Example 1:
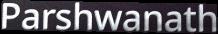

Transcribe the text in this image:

Parshwanath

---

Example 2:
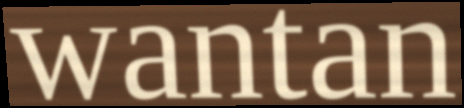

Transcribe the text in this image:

wantan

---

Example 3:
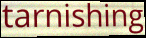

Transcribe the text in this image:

tarnishing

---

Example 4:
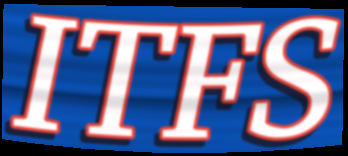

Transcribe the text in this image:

ITFS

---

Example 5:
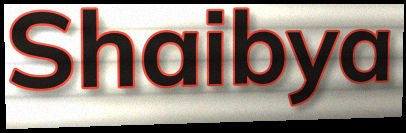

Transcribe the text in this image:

Shaibya